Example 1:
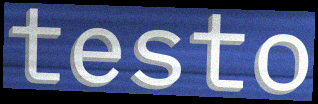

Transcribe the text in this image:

testo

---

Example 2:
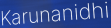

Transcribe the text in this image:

Karunanidhi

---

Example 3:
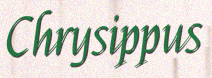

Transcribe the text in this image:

Chrysippus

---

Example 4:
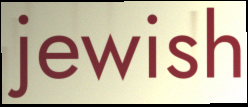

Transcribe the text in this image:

jewish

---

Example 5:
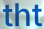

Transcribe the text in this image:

tht